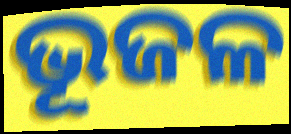
ଭୂଜଳ